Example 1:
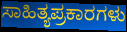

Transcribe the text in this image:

ಸಾಹಿತ್ಯಪ್ರಕಾರಗಳು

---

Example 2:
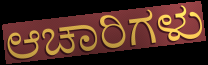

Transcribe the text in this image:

ಆಚಾರಿಗಳು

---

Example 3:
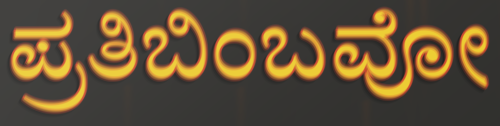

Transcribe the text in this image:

ಪ್ರತಿಬಿಂಬವೋ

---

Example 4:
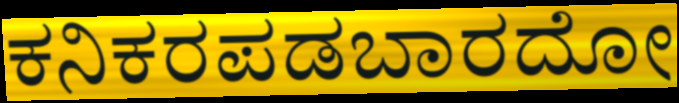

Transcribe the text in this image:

ಕನಿಕರಪಡಬಾರದೋ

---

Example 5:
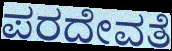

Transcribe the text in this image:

ಪರದೇವತೆ